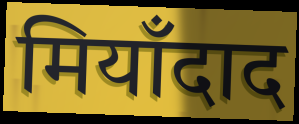
मियाँदाद